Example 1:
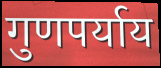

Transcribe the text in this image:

गुणपर्याय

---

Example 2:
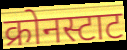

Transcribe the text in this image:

क्रोनस्टाट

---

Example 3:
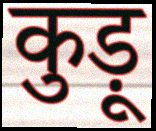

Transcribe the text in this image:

कुड़ू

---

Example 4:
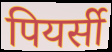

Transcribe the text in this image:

पियर्सी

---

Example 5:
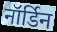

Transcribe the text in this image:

नॉर्डिन